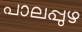
പാലപ്പുഴ